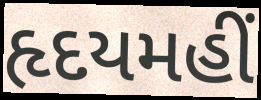
હૃદયમહીં